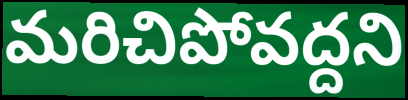
మరిచిపోవద్దని